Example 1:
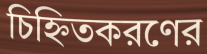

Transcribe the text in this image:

চিহ্নিতকরণের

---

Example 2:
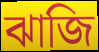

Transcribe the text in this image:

ঝাজি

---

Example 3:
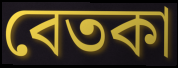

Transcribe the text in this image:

বেতকা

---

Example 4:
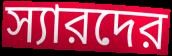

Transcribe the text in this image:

স্যারদের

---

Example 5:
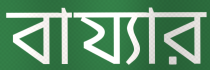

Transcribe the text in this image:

বায্যার